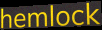
hemlock